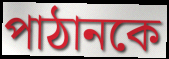
পাঠানকে